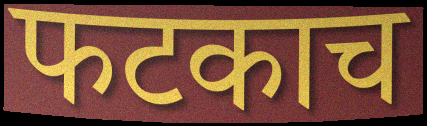
फटकाच